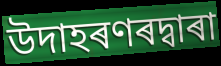
উদাহৰণৰদ্বাৰা